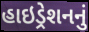
હાઇડ્રેશનનું